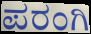
ಪರಂಗಿ